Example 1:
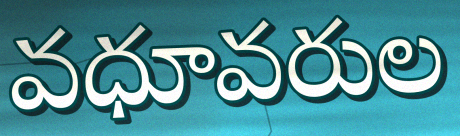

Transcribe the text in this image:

వధూవరుల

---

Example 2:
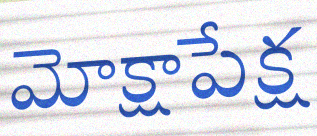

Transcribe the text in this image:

మోక్షాపేక్ష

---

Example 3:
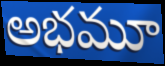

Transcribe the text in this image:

అభమూ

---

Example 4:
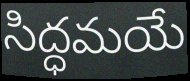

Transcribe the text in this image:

సిద్ధమయే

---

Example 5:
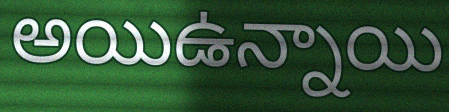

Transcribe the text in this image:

అయిఉన్నాయి